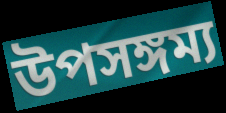
উপসঙ্গম্য